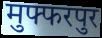
मुफ्फरपुर